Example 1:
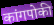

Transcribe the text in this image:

कांगपोकी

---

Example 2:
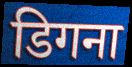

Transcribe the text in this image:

डिगना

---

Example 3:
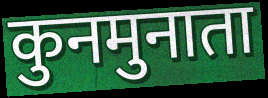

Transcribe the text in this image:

कुनमुनाता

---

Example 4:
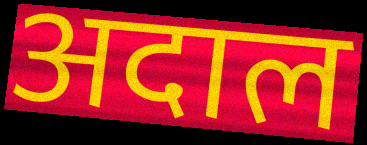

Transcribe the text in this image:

अदाल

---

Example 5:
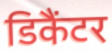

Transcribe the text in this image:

डिकैंटर